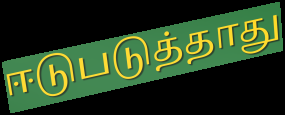
ஈடுபடுத்தாது